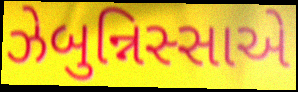
ઝેબુન્નિસ્સાએ